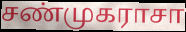
சண்முகராசா